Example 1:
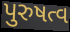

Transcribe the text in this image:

પુરુષત્વ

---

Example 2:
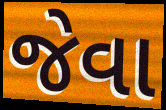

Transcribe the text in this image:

જેવા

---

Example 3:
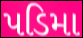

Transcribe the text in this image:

પડિમા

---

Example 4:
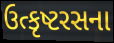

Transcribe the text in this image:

ઉત્કૃષ્ટરસના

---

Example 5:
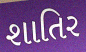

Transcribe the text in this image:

શાતિર